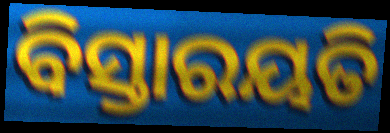
ବିସ୍ତାରୟତି